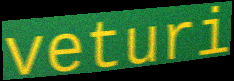
veturi